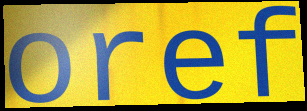
oref